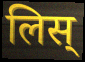
लिस्